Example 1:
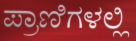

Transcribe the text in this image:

ಪ್ರಾಣಿಗಳಲ್ಲಿ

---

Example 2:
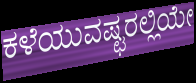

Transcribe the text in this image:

ಕಳೆಯುವಷ್ಟರಲ್ಲಿಯೇ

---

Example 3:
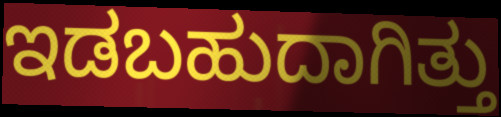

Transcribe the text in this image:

ಇಡಬಹುದಾಗಿತ್ತು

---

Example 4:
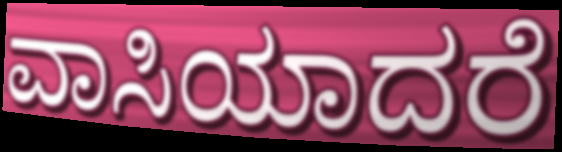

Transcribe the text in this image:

ವಾಸಿಯಾದರೆ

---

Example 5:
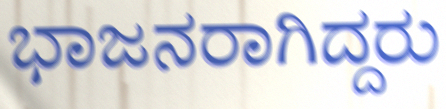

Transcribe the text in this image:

ಭಾಜನರಾಗಿದ್ದರು